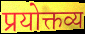
प्रयोक्तव्य